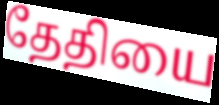
தேதியை